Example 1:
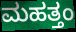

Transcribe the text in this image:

ಮಹತ್ತಂ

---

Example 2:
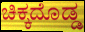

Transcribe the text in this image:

ಚಿಕ್ಕದೊಡ್ಡ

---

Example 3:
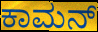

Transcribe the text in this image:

ಕಾಮನ್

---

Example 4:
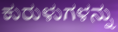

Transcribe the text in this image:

ಕುರುಳುಗಳನ್ನು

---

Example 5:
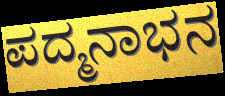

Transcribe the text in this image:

ಪದ್ಮನಾಭನ